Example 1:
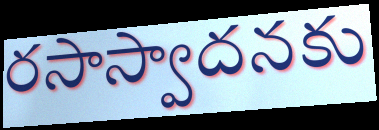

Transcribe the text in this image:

రసాస్వాదనకు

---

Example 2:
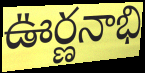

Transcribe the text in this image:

ఊర్ణనాభి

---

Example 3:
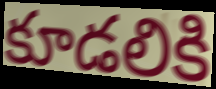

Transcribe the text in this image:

కూడలికి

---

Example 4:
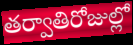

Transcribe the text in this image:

తర్వాతిరోజుల్లో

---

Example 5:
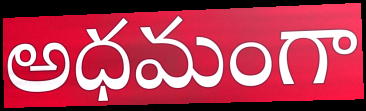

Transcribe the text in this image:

అధమంగా